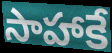
సాహాకే